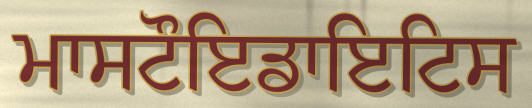
ਮਾਸਟੌਇਡਾਇਟਿਸ